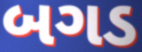
બગડ